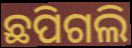
ଛପିଗଲି